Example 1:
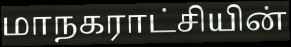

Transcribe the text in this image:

மாநகராட்சியின்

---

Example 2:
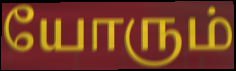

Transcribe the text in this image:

யோரும்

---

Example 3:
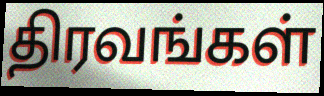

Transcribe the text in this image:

திரவங்கள்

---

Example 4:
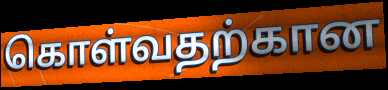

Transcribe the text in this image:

கொள்வதற்கான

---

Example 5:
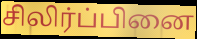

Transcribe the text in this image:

சிலிர்ப்பினை